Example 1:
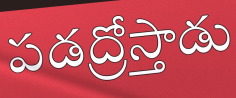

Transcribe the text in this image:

పడద్రోస్తాడు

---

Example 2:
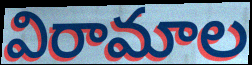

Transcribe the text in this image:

విరామాల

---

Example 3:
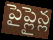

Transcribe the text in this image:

పైప్లైన్ల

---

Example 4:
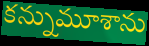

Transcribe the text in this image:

కన్నుమూశాను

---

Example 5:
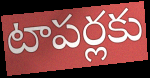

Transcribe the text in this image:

టాపర్లకు